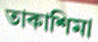
তাকাশিমা